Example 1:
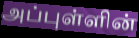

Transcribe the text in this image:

அப்புள்ளின்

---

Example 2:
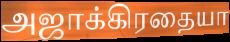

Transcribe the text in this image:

அஜாக்கிரதையா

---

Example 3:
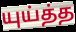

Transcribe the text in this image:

யுய்த்த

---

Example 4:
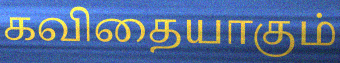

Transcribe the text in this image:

கவிதையாகும்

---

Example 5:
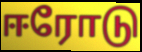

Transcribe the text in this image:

ஈரோடு